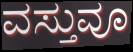
ವಸ್ತುವೂ